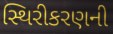
સ્થિરીકરણની